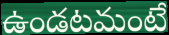
ఉండటమంటే